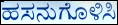
ಹಸನುಗೊಳಿಸಿ